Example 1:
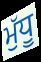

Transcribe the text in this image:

ਮੁੱਧੂ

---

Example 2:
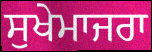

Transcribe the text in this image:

ਸੁਖੇਮਾਜਰਾ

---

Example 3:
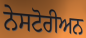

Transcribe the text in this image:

ਨੇਸਟੋਰੀਅਨ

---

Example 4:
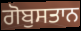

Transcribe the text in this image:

ਗੋਬੁਸਤਾਨ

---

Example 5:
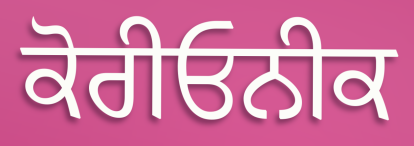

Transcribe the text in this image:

ਕੋਰੀਓਨੀਕ